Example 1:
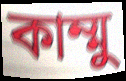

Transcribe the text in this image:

কাম্মু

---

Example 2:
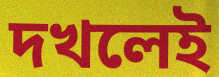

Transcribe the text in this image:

দখলেই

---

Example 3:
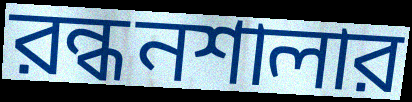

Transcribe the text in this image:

রন্ধনশালার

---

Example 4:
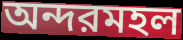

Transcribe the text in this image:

অন্দরমহল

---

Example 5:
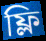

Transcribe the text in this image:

ফ্লি